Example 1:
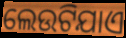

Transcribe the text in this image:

ଲେଉଟିଯାଏ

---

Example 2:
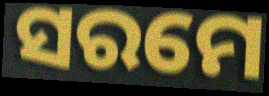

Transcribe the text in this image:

ସରମେ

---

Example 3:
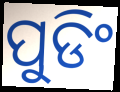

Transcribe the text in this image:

ପୁଡିଂ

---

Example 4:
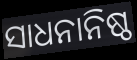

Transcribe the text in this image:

ସାଧନାନିଷ୍ଠ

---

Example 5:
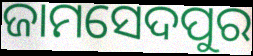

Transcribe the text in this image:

ଜାମସେଦପୁର